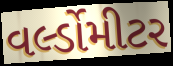
વર્લ્ડોમીટર